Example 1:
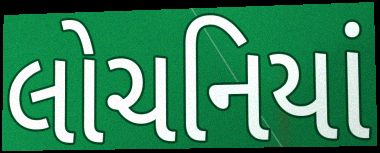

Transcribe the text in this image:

લોચનિયાં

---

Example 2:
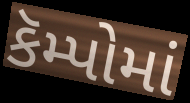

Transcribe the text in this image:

કૅમ્પોમાં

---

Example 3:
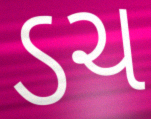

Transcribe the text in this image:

ડચ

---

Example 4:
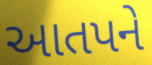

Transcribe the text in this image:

આતપને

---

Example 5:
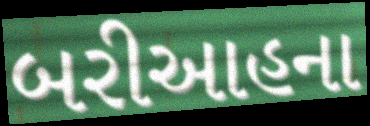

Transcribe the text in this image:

બરીઆહના